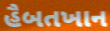
હૈબતખાન